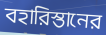
বহারিস্তানের